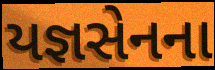
યજ્ઞસેનના